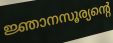
ജ്ഞാനസൂര്യന്റെ